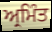
ਅ੍ਰਮਿੰਤ